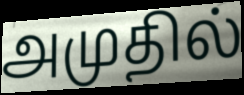
அமுதில்